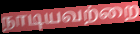
நாடியவற்றை